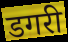
डगरी